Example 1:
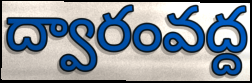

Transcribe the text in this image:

ద్వారంవద్ద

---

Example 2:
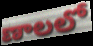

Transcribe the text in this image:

ణాలలో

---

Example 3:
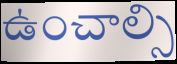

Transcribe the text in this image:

ఉంచాల్సి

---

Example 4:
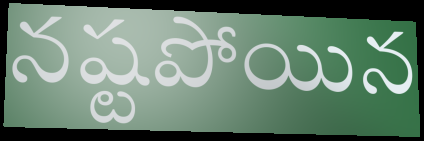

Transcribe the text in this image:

నష్టపోయిన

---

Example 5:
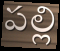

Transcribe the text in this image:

పల్లి